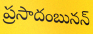
ప్రసాదంబునన్